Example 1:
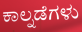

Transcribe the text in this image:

ಕಾಲ್ನಡೆಗಳು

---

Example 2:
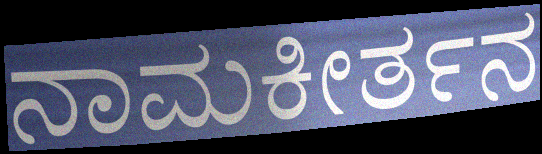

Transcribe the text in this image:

ನಾಮಕೀರ್ತನ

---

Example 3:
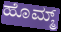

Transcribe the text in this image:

ಹೊಮ್ಮ್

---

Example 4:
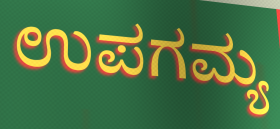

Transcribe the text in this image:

ಉಪಗಮ್ಯ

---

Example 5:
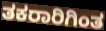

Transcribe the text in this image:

ತಕರಾರಿಗಿಂತ